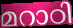
മറാഠി